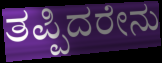
ತಪ್ಪಿದರೇನು